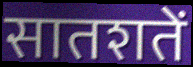
सातशतें